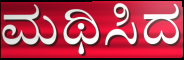
ಮಥಿಸಿದ